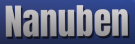
Nanuben